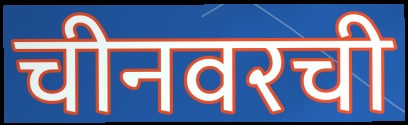
चीनवरची